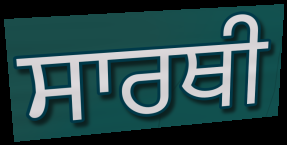
ਸਾਰਥੀ